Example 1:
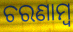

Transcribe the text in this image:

ଚରଣାମ୍ବ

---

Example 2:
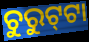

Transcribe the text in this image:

ଚୁରୁଟ୍‍ଟା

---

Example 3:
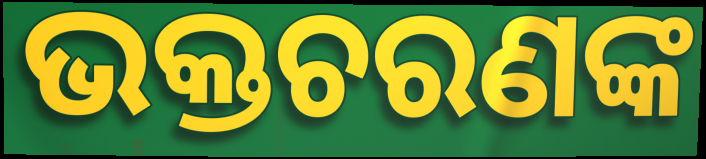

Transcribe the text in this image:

ଭକ୍ତଚରଣଙ୍କ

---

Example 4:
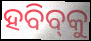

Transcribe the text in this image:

ହବିବ୍‌କୁ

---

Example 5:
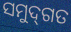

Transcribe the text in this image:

ସମୁଦ୍‌ଗତ